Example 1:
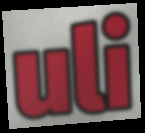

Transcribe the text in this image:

uli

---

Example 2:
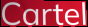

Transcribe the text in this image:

Cartel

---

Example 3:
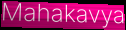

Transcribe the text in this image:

Mahakavya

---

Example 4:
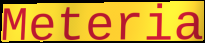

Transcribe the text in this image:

Meteria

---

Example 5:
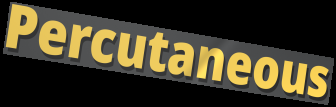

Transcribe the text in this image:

Percutaneous